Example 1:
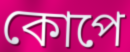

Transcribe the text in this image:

কোপে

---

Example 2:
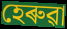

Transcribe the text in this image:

হেৰুৱা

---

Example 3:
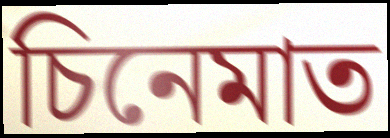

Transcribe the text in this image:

চিনেমাত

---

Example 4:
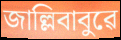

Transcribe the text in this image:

জাল্লিবাবুৱে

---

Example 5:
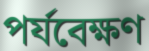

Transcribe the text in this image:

পৰ্যবেক্ষণ